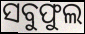
ସବୁଫୁଲ